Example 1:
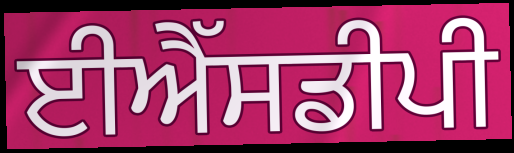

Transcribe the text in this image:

ਈਐੱਸਡੀਪੀ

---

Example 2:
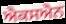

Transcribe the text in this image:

ਐਕਸਐਨ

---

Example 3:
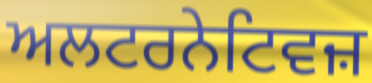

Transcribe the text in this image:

ਅਲਟਰਨੇਟਿਵਜ਼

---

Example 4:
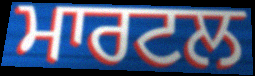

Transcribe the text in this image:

ਮਾਰਟਲ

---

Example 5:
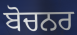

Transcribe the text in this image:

ਬੋਚਨਰ